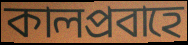
কালপ্রবাহে